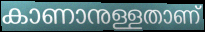
കാണാനുള്ളതാണ്